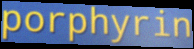
porphyrin